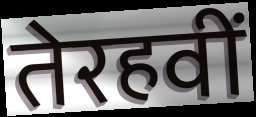
तेरहवीं